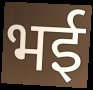
भई